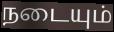
நடையும்